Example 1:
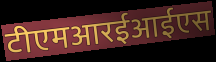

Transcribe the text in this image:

टीएमआरईआईएस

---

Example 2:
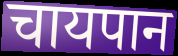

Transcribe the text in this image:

चायपान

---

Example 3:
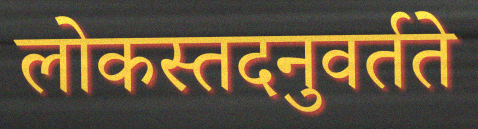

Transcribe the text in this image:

लोकस्तदनुवर्तते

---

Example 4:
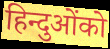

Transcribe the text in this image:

हिन्दुओंको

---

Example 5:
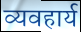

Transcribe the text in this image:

व्यवहार्य